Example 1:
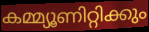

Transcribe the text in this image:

കമ്മ്യൂണിറ്റിക്കും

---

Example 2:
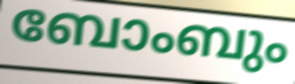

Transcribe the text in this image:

ബോംബും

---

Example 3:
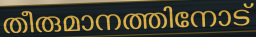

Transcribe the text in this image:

തീരുമാനത്തിനോട്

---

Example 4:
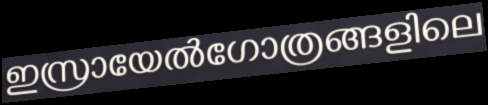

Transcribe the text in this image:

ഇസ്രായേൽഗോത്രങ്ങളിലെ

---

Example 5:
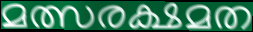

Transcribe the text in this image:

മത്സരക്ഷമത